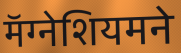
मॅग्नेशियमने